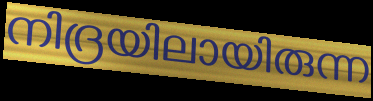
നിദ്രയിലായിരുന്ന